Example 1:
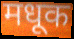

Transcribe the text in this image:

मधूक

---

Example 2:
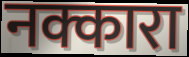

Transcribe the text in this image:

नक्कारा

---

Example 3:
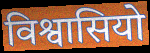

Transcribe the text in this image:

विश्वासियो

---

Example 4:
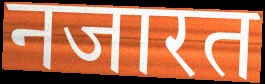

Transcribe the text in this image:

नजारत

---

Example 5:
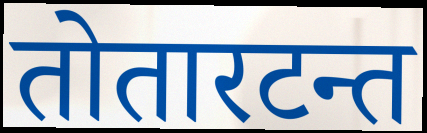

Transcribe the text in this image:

तोतारटन्त